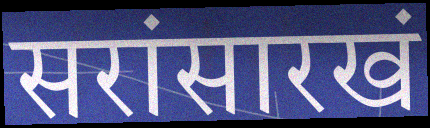
सरांसारखं